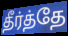
தீர்த்தே